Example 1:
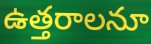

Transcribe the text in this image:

ఉత్తరాలనూ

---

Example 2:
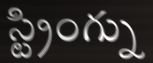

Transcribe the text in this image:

స్ట్రింగ్ను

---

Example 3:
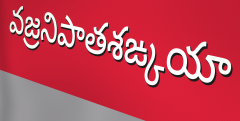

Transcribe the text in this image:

వజ్రనిపాతశఙ్కయా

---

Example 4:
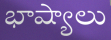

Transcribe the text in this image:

భాష్యాలు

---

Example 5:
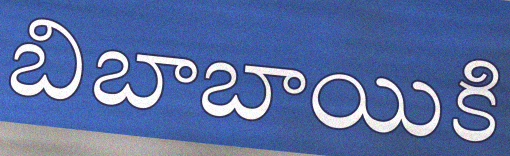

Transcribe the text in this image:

బిబాబాయికి